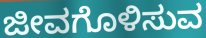
ಜೀವಗೊಳಿಸುವ